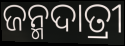
ଜନ୍ମଦାତ୍ରୀ